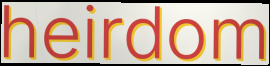
heirdom